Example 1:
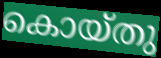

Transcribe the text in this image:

കൊയ്തു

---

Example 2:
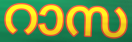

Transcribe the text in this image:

റാസ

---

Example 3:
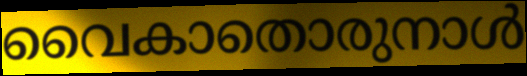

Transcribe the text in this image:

വൈകാതൊരുനാൾ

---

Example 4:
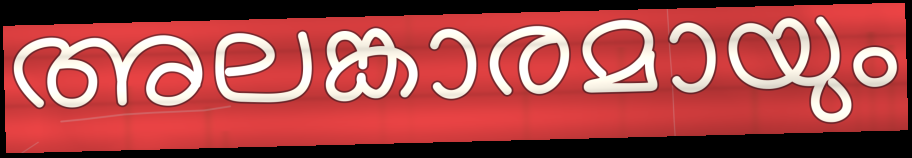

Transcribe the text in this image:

അലങ്കാരമായും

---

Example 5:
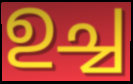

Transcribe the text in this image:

ഉച്ച